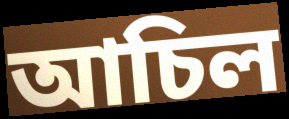
আচিল